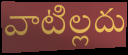
వాటిల్లదు